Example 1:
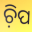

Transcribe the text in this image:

ଚ଼ିପ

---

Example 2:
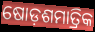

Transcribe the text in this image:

ଷୋଡ଼ଶମାତ୍ରିକ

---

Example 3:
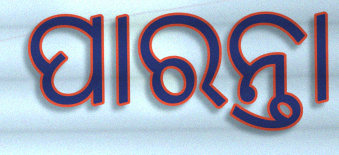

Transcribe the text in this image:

ପାରନ୍ତା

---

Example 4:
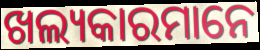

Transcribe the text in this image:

ଖଲ୍ୟକାରମାନେ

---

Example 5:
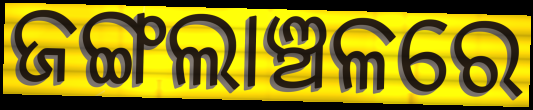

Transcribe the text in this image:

ଜଙ୍ଗଲାଞ୍ଚଳରେ